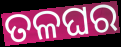
ତଳଘର